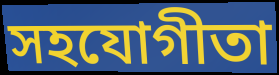
সহযোগীতা